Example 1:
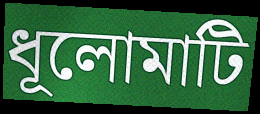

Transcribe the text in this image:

ধূলোমাটি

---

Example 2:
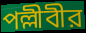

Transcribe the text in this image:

পল্লীবীর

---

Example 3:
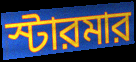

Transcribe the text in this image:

স্টারমার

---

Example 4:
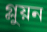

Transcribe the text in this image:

গ্লুয়ন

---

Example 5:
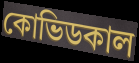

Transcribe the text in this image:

কোভিডকাল